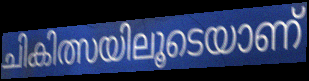
ചികിത്സയിലൂടെയാണ്